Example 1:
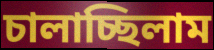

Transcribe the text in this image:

চালাচ্ছিলাম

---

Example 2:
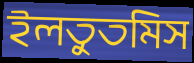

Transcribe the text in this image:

ইলতুতমিস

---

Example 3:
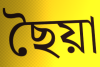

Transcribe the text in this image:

ছৈয়া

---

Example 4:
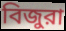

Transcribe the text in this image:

বিজুরা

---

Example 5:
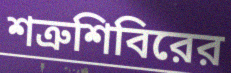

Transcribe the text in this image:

শত্রুশিবিরের